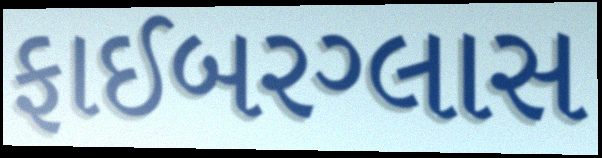
ફાઈબરગ્લાસ